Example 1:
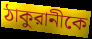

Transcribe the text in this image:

ঠাকুরানীকে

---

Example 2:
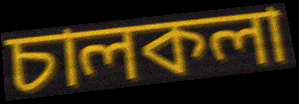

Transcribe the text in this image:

চালকলা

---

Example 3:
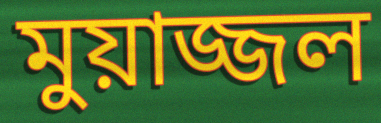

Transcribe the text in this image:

মুয়াজ্জল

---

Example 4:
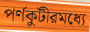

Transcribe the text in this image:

পর্ণকুটীরমধ্যে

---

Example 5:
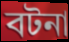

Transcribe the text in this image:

বটনা